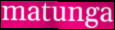
matunga